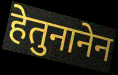
हेतुनानेन